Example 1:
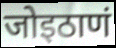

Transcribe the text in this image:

जोइठाणं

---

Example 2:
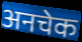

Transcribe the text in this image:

अनचेक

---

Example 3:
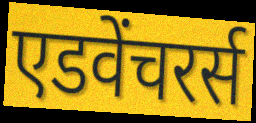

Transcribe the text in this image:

एडवेंचरर्स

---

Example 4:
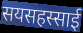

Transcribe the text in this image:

सयसहस्साई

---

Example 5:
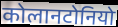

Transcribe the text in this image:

कोलानटोनियो